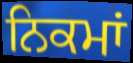
ਨਿਕਮਾਂ